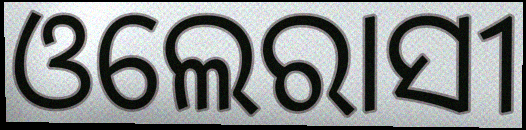
ଓଲେରାସୀ